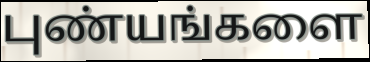
புண்யங்களை